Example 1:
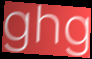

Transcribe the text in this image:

ghg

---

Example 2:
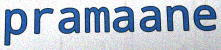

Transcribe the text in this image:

pramaane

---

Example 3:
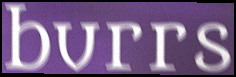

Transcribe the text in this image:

burrs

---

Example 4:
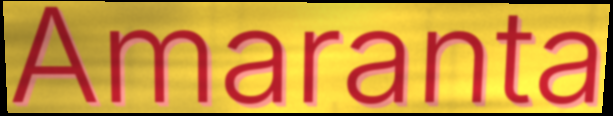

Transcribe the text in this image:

Amaranta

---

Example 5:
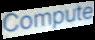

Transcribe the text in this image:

Compute